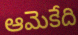
ఆమెకేది